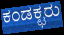
ಕಂಡಕ್ಟರು